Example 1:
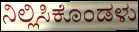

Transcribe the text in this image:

ನಿಲ್ಲಿಸಿಕೊಂಡಳು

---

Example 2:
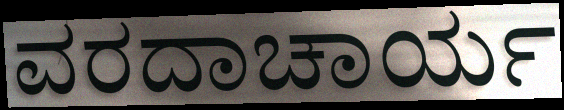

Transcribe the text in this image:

ವರದಾಚಾರ್ಯ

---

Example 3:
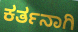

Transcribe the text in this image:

ಕರ್ತನಾಗಿ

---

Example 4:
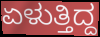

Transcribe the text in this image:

ಏಳುತ್ತಿದ್ದ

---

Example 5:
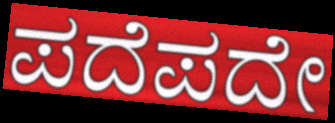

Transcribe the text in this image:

ಪದೆಪದೇ